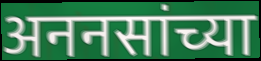
अननसांच्या